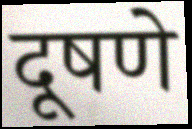
दूषणे